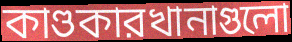
কাণ্ডকারখানাগুলো